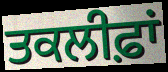
ਤਕਲੀਫ਼ਾਂ